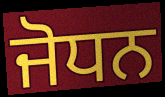
ਜੋਧਨ